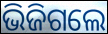
ଭିଜିଗଲେ